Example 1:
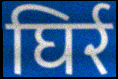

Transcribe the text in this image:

घिर्र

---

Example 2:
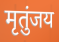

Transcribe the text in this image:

मृतुंजय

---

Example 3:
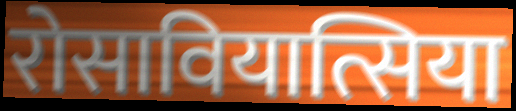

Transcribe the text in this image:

रोसावियात्सिया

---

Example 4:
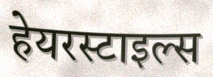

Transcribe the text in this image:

हेयरस्टाइल्स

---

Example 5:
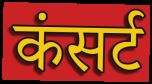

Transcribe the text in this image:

कंसर्ट